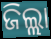
ଜିଲ୍ଲା